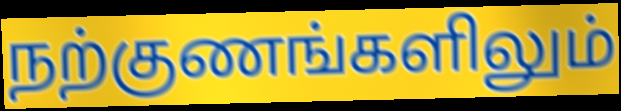
நற்குணங்களிலும்